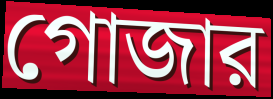
গোজার